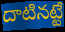
దాటినట్టే